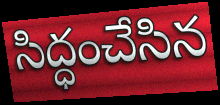
సిద్ధంచేసిన